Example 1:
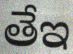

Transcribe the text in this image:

తేఇ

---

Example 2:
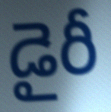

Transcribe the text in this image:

డైరీ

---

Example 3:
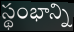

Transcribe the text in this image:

స్థంభాన్ని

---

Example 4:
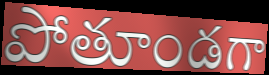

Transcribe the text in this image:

పోతూండగా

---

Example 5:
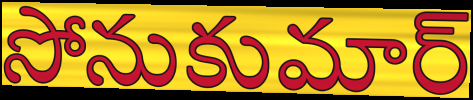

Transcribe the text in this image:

సోనుకుమార్